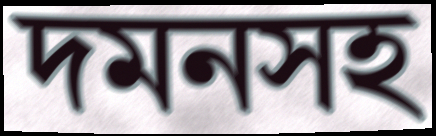
দমনসহ